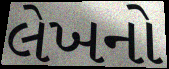
લેખનો